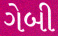
ગેબી